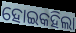
ହୋଇକହିଲା